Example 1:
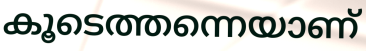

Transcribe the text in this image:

കൂടെത്തന്നെയാണ്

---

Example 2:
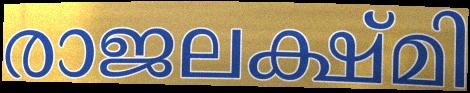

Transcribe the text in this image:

രാജലക്ഷ്മി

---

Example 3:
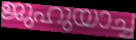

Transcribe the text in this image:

ജുഹുയാച്ച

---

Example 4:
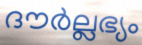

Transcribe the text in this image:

ദൗർല്ലഭ്യം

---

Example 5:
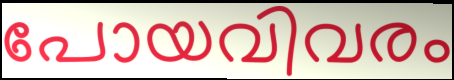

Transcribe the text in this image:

പോയവിവരം